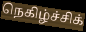
நெகிழ்ச்சிக்